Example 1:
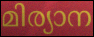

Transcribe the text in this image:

മിര്യാന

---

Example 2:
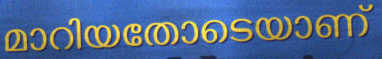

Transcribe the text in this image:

മാറിയതോടെയാണ്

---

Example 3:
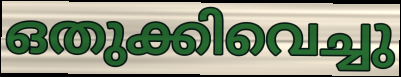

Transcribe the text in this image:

ഒതുക്കിവെച്ചു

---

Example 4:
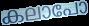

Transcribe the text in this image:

കലാപോ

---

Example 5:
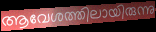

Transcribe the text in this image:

ആവേശത്തിലായിരുന്നു